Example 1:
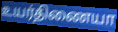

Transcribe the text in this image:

உயர்திணையா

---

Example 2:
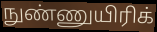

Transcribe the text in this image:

நுண்ணுயிரிக்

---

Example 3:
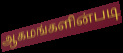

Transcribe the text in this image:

ஆகமங்களின்படி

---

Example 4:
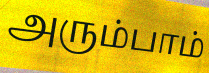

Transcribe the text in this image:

அரும்பாம்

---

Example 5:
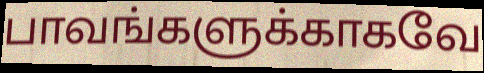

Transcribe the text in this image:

பாவங்களுக்காகவே